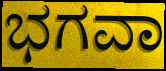
ಭಗವಾ